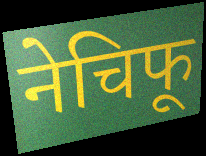
नेचिफू